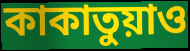
কাকাতুয়াও